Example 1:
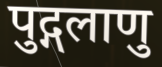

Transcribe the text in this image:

पुद्गलाणु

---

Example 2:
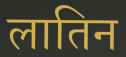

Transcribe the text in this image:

लातिन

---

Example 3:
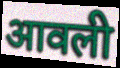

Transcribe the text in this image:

आवली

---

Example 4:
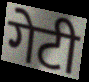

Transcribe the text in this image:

गेटी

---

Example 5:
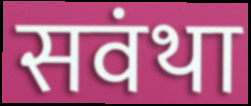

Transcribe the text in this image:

सवंथा